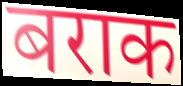
बराक